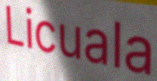
Licuala